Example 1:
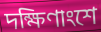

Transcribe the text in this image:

দক্ষিণাংশে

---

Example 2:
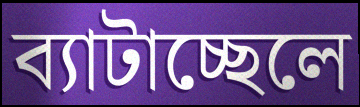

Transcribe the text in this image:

ব্যাটাচ্ছেলে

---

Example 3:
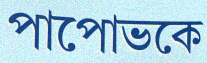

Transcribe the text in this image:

পাপোভকে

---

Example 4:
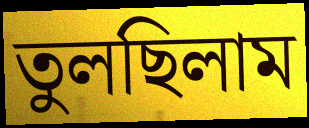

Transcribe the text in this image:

তুলছিলাম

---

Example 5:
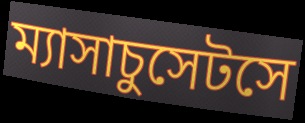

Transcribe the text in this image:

ম্যাসাচুসেটসে